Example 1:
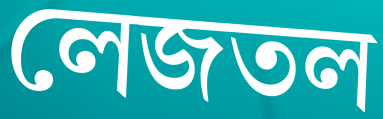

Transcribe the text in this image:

লেজতল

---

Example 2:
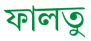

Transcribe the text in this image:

ফালতু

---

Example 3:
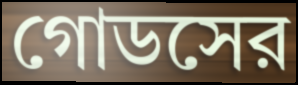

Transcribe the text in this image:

গোডসের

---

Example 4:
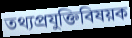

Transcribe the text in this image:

তথ্যপ্রযুক্তিবিষয়ক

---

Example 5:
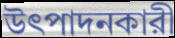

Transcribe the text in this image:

উৎপাদনকারী